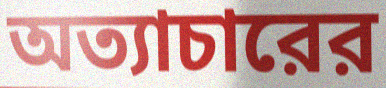
অত্যাচারের